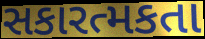
સકારત્મકતા